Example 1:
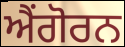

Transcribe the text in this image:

ਐਂਗੋਰਨ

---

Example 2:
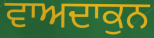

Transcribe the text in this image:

ਵਾਅਦਾਕੁਨ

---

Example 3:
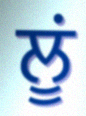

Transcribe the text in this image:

ਲੂਂ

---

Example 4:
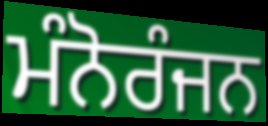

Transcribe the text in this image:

ਮੰਨੋਰੰਜਨ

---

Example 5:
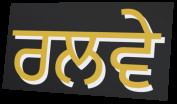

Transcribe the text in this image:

ਰਲਵੇ